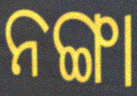
ନଙ୍ଗା